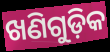
ଖଣିଗୁଡ଼ିକ